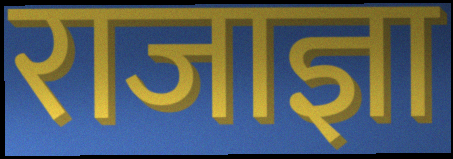
राजाज्ञा